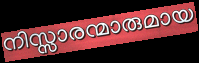
നിസ്സാരന്മാരുമായ